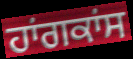
ਹਾਂਗਕਾਂਸ